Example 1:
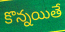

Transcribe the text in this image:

కొన్నయితే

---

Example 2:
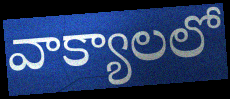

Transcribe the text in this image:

వాక్యాలలో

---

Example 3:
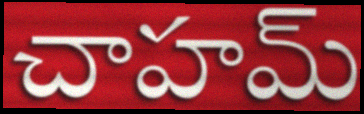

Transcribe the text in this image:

చాహమ్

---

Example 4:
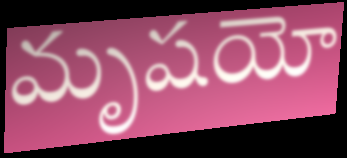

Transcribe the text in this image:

మృషయో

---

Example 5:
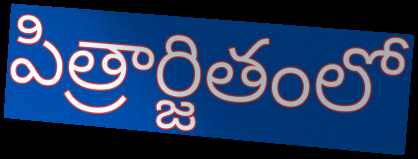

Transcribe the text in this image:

పిత్రార్జితంలో